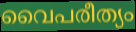
വൈപരീത്യം